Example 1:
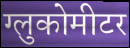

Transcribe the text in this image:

ग्लुकोमीटर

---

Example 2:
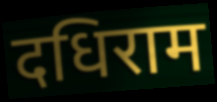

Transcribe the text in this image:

दधिराम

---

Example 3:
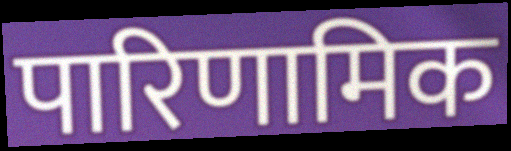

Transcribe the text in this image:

पारिणामिक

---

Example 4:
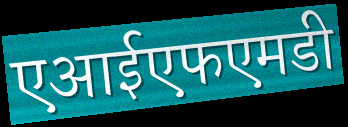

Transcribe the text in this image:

एआईएफएमडी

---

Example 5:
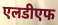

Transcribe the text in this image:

एलडीएफ